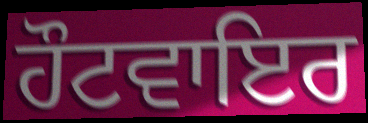
ਹੌਟਵਾਇਰ